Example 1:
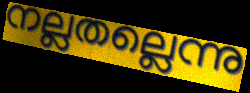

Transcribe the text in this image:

നല്ലതല്ലെന്നു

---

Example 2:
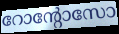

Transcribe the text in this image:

റോന്റോസോ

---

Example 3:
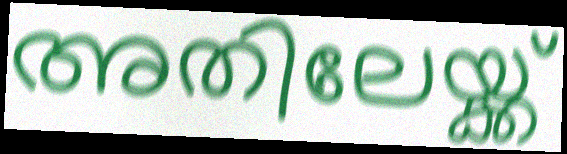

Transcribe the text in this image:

അതിലേയ്ക്ക്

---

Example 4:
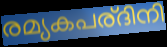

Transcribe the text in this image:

രമ്യകപര്ദിനി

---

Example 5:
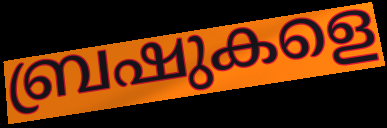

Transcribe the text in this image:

ബ്രഷുകളെ